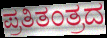
ಪ್ರತಿತಂತ್ರದ